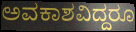
ಅವಕಾಶವಿದ್ದರೂ